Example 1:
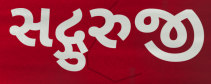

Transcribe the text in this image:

સદ્ગુરુજી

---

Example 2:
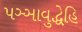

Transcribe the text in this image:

પઞ્ઞાવુદ્ધેહિ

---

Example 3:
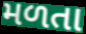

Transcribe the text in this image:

મળતા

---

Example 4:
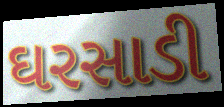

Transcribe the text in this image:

ઘરસાડી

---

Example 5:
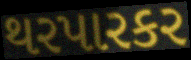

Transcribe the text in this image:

થરપારકર